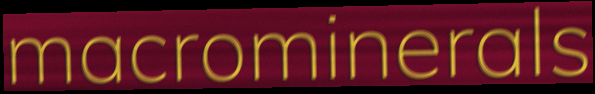
macrominerals